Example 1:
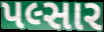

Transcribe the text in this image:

પલ્સાર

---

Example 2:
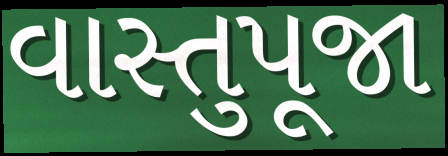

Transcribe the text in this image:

વાસ્તુપૂજા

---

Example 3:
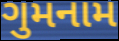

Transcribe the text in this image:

ગુમનામ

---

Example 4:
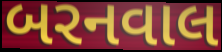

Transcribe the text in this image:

બરનવાલ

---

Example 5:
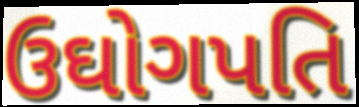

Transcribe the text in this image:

ઉઘોગપતિ